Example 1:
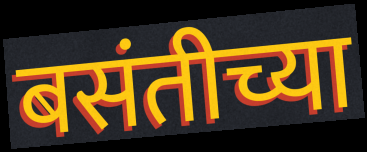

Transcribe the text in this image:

बसंतीच्या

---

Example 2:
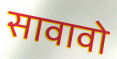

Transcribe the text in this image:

सावावो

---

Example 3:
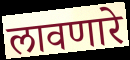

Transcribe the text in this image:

लावणारे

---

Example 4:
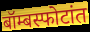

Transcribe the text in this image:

बॉम्बस्फोटांत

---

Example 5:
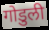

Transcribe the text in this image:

गोडुली